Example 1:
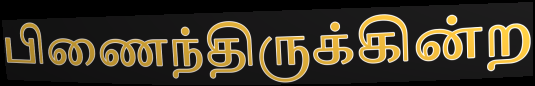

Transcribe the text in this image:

பிணைந்திருக்கின்ற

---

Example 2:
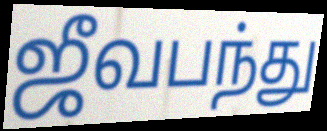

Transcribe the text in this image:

ஜீவபந்து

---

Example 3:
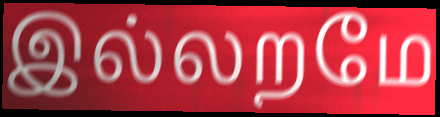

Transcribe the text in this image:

இல்லறமே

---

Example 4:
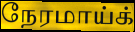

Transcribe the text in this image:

நேரமாய்க்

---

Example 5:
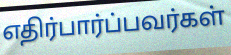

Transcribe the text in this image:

எதிர்பார்ப்பவர்கள்